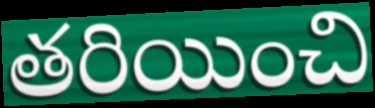
తరియించి